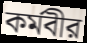
কর্মবীর